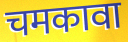
चमकावा